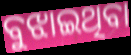
ବୁଝାଇଥିବା